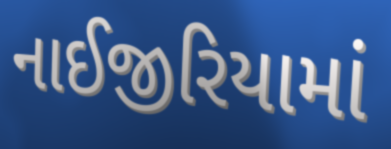
નાઈજીરિયામાં